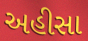
અહીસા